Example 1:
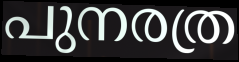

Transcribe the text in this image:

പുനരത്ര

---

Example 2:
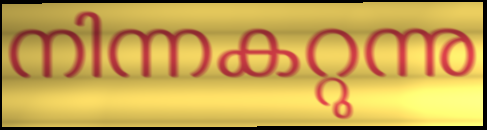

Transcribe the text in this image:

നിന്നകറ്റുന്നു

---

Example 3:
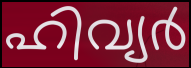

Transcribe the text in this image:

ഹിവ്യർ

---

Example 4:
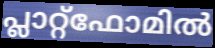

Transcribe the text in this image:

പ്ലാറ്റ്ഫോമിൽ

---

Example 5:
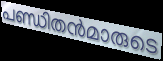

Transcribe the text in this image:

പണ്ഡിതൻമാരുടെ